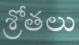
శ్రోతలు